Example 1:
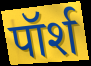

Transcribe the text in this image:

पॉर्श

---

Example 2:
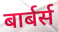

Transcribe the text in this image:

बार्बर्स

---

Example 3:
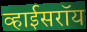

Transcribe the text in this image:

व्हाईसरॉय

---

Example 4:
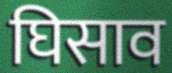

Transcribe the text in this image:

घिसाव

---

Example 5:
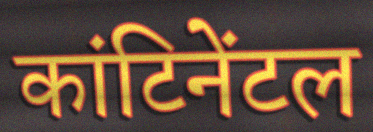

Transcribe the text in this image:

कांटिनेंटल